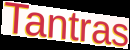
Tantras